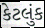
કેટલુંક